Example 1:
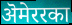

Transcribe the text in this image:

ऄमेररका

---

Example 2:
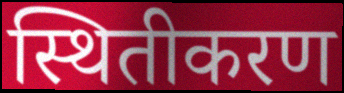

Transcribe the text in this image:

स्थितीकरण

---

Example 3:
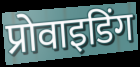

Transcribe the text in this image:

प्रोवाइडिंग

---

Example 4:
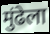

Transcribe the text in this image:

मुंढेला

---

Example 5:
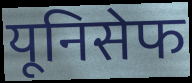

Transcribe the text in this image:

यूनिसेफ